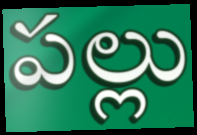
పల్లు